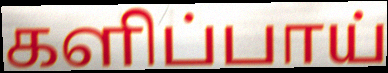
களிப்பாய்